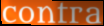
contra